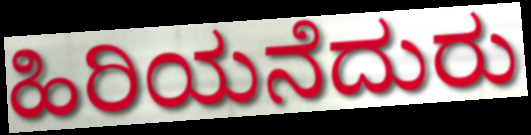
ಹಿರಿಯನೆದುರು